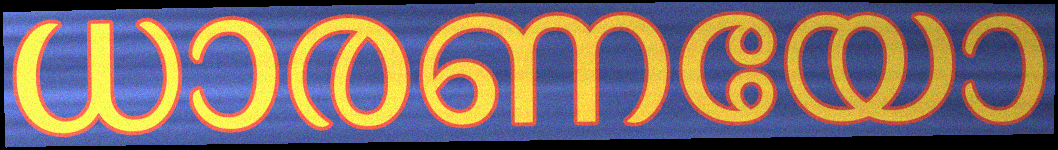
ധാരണയോ